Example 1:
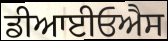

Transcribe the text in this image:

ਡੀਆਈਓਐਸ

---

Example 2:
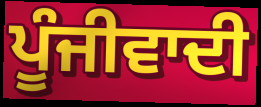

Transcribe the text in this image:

ਪੂੰਜੀਵਾਦੀ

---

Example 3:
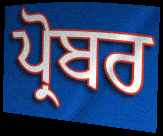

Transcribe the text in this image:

ਪ੍ਰੋਬਰ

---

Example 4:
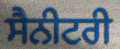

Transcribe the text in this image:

ਸੈਨੀਟਰੀ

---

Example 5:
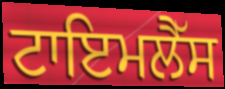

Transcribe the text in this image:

ਟਾਇਮਲੈੱਸ